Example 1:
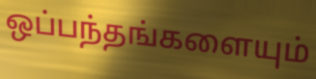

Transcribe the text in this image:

ஒப்பந்தங்களையும்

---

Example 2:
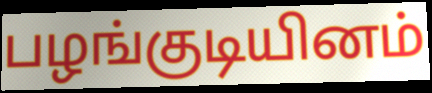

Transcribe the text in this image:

பழங்குடியினம்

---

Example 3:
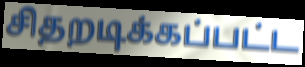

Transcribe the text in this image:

சிதறடிக்கப்பட்ட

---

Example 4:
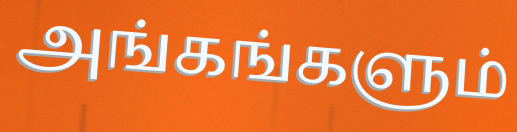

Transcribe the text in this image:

அங்கங்களும்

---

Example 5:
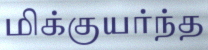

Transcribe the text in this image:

மிக்குயர்ந்த